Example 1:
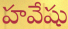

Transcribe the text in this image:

హవేషు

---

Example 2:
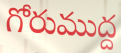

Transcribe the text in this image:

గోరుముద్ద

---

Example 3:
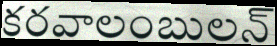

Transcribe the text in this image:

కరవాలంబులన్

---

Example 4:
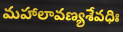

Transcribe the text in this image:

మహాలావణ్యశేవధిః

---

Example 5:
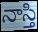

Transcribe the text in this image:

నాస్తి